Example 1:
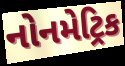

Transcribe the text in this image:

નોનમેટ્રિક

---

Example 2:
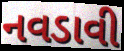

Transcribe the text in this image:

નવડાવી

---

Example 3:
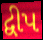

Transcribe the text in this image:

દ્વીપ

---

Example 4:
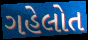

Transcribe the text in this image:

ગહેલોત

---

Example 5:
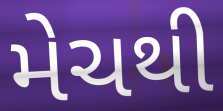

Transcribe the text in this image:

મેચથી